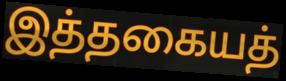
இத்தகையத்